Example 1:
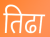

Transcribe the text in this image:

तिढा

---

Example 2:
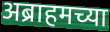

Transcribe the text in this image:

अब्राहमच्या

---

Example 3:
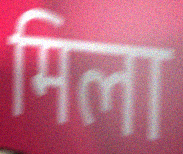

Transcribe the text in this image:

मिला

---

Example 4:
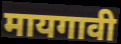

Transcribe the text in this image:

मायगावी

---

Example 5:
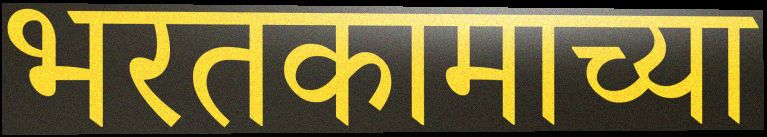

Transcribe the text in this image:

भरतकामाच्या